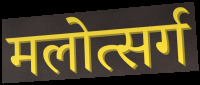
मलोत्सर्ग